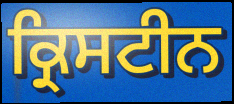
ਕ੍ਰਿਸਟੀਨ